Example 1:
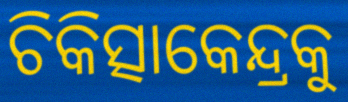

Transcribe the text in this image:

ଚିକିତ୍ସାକେନ୍ଦ୍ରକୁ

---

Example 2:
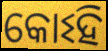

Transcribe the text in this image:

କୋଽହି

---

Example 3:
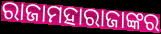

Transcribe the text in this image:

ରାଜାମହାରାଜାଙ୍କର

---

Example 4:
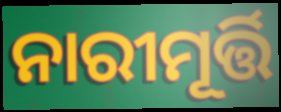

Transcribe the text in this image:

ନାରୀମୂର୍ତ୍ତି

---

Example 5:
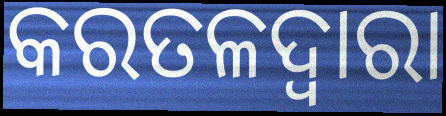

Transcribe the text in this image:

କରତଳଦ୍ୱାରା